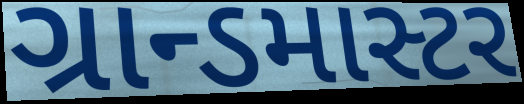
ગ્રાન્ડમાસ્ટર